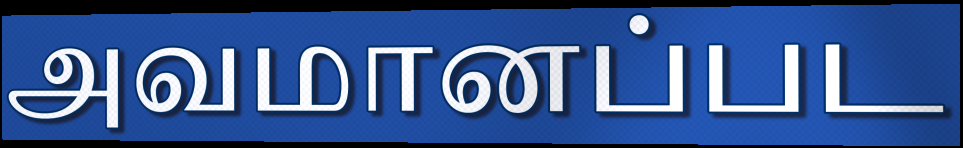
அவமானப்பட